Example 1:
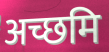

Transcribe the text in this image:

अच्छमि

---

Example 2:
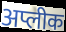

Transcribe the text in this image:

अप्लीक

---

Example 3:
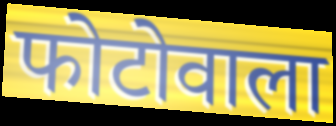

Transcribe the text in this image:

फोटोवाला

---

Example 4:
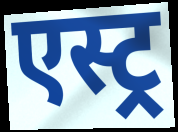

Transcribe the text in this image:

एस्ट्र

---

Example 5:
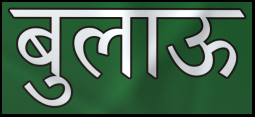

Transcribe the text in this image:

बुलाऊ